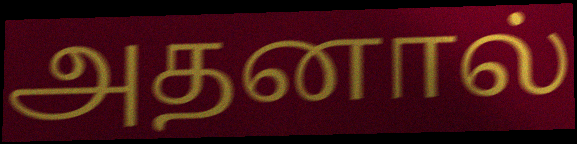
அதனால்